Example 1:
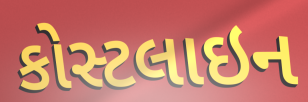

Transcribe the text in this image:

કોસ્ટલાઇન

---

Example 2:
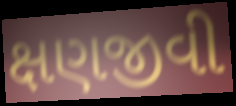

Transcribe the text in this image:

ક્ષણજીવી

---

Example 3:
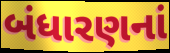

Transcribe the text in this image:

બંધારણનાં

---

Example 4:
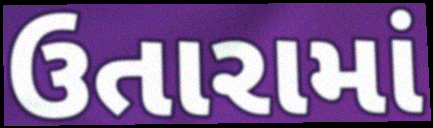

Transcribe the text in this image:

ઉતારામાં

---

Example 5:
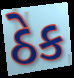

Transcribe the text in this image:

ઠેક